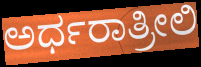
ಅರ್ಧರಾತ್ರೀಲಿ